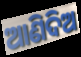
ଆଣିଦିଅ